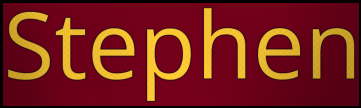
Stephen